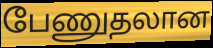
பேணுதலான